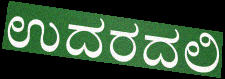
ಉದರದಲಿ